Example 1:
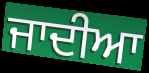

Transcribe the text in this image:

ਜਾਦੀਆ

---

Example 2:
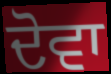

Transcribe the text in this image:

ਦੋਵਾ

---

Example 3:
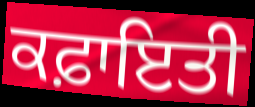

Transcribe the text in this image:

ਕਫ਼ਾਇਤੀ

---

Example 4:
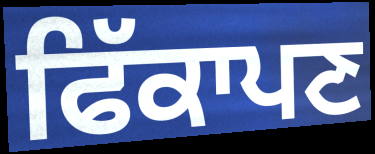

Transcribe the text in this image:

ਫਿੱਕਾਪਣ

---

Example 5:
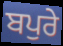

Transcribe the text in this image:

ਬਪੁਰੇ